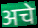
अचे